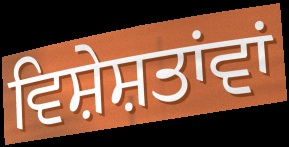
ਵਿਸ਼ੇਸ਼ਤਾਂਵਾਂ